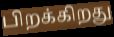
பிறக்கிறது